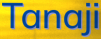
Tanaji